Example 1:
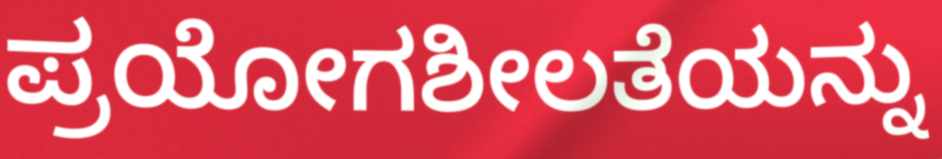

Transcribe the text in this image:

ಪ್ರಯೋಗಶೀಲತೆಯನ್ನು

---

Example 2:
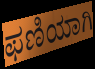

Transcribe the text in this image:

ಫಣಿಯಾಗಿ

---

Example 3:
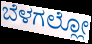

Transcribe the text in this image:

ಬೆಳಗಲ್ಲೋ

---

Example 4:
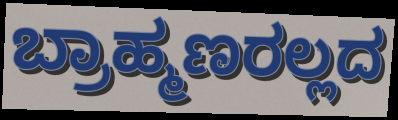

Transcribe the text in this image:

ಬ್ರಾಹ್ಮಣರಲ್ಲದ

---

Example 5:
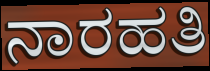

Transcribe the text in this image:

ನಾರಹತಿ